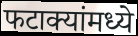
फटाक्यांमध्ये